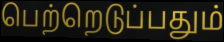
பெற்றெடுப்பதும்